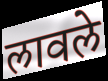
लावले